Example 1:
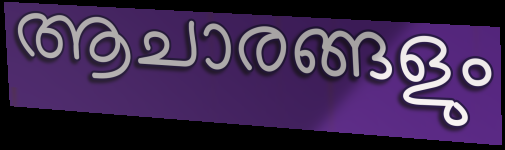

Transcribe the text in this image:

ആചാരങ്ങളും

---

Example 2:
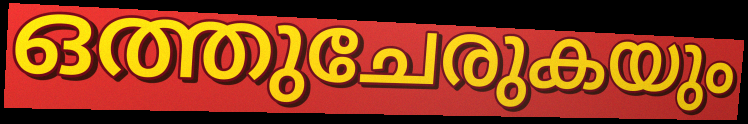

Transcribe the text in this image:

ഒത്തുചേരുകയും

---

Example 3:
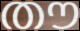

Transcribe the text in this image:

തൗ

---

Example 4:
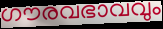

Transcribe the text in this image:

ഗൗരവഭാവവും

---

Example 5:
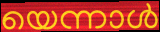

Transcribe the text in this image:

യെന്നാൾ